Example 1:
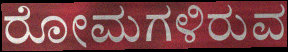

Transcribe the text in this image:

ರೋಮಗಳಿರುವ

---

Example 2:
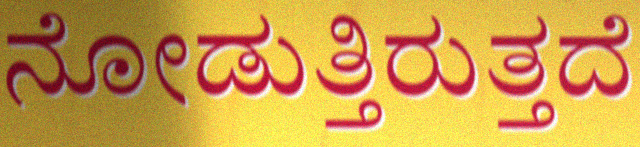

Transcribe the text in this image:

ನೋಡುತ್ತಿರುತ್ತದೆ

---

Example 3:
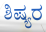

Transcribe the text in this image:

ಶಿಷ್ಯರ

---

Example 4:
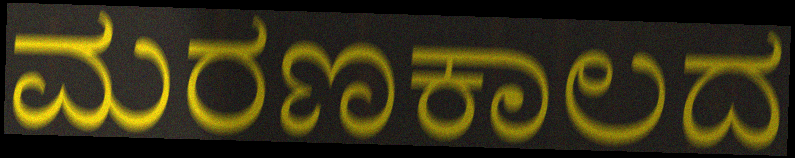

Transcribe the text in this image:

ಮರಣಕಾಲದ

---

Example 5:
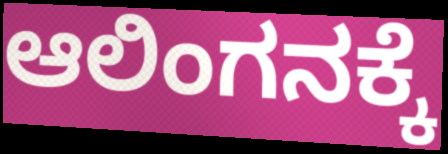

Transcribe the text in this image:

ಆಲಿಂಗನಕ್ಕೆ